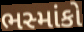
ભસ્માંકો